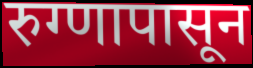
रुग्णापासून